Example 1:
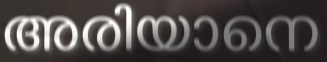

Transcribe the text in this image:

അരിയാനെ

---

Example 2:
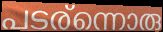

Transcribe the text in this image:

പടര്ന്നൊരു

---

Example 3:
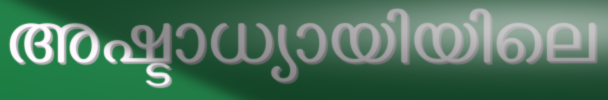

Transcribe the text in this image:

അഷ്ടാധ്യായിയിലെ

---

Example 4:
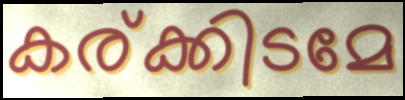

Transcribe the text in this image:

കര്ക്കിടമേ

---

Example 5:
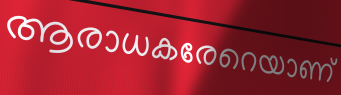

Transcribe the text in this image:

ആരാധകരേറെയാണ്